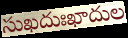
సుఖదుఃఖాదుల